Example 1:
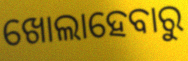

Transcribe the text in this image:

ଖୋଲାହେବାରୁ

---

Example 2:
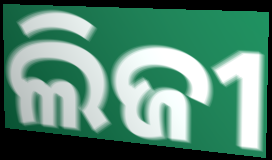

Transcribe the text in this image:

ଲିଜୀ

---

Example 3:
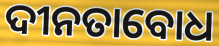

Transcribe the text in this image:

ଦୀନତାବୋଧ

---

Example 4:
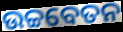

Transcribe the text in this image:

ଉଚ୍ଚବେତନ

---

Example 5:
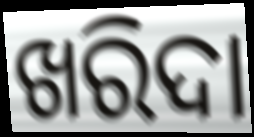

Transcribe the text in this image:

ଖରିଦା